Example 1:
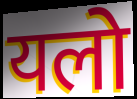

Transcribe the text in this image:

यलो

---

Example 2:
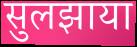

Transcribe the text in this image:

सुलझाया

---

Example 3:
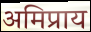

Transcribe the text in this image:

अमिप्राय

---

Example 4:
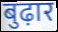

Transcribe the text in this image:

बुढ़ार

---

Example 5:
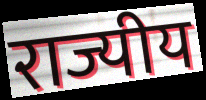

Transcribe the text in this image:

राज्‍यीय